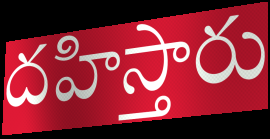
దహిస్తారు